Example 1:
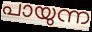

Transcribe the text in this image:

പായുന്ന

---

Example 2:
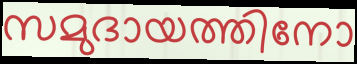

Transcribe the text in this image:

സമുദായത്തിനോ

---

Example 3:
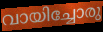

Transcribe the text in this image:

വായിച്ചോരു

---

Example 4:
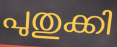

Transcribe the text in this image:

പുതുക്കി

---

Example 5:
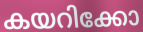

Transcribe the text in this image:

കയറിക്കോ